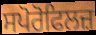
ਸਪੋਰੋਫਿਲਜ਼